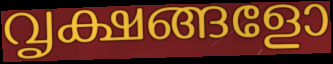
വൃക്ഷങ്ങളോ